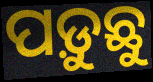
ପଡ଼ୁଛୁ